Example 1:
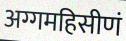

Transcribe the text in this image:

अग्गमहिसीणं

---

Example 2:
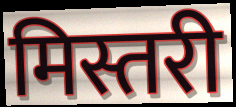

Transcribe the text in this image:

मिस्तरी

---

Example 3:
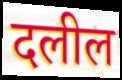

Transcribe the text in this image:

दलील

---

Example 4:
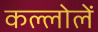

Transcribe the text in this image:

कल्लोलें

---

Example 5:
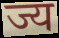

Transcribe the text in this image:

ज्य